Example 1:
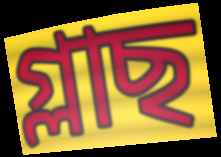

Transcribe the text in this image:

গ্লাছ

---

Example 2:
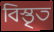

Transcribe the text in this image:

বিস্তৃত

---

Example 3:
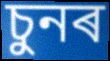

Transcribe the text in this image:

চুনৰ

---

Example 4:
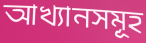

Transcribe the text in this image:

আখ্যানসমূহ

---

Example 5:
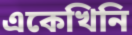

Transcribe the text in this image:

একেখিনি